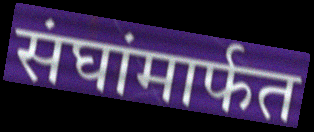
संघांमार्फत